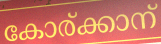
കോര്ക്കാന്